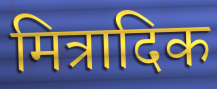
मित्रादिक